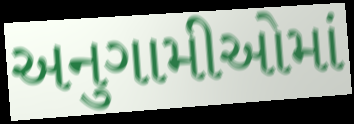
અનુગામીઓમાં